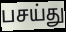
பசய்து